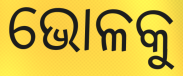
ଭୋଳକୁ